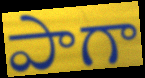
పాగా